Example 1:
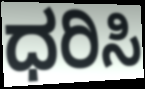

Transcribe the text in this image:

ಧರಿಸಿ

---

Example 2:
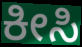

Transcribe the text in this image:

ಕೀಸಿ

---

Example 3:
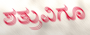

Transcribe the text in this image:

ಶತ್ರುವಿಗೂ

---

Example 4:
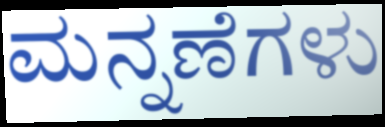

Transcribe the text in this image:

ಮನ್ನಣೆಗಳು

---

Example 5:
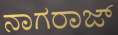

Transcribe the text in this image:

ನಾಗರಾಜ್